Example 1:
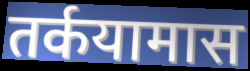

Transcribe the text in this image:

तर्कयामास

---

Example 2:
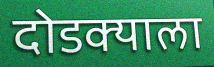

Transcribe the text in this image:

दोडक्याला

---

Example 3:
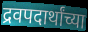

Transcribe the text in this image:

द्रवपदार्थांच्या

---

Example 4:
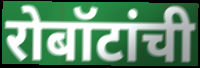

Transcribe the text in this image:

रोबॉटांची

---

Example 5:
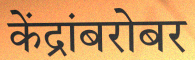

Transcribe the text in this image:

केंद्रांबरोबर